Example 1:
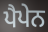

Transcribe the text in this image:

ਪੈਪੇਨ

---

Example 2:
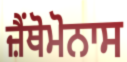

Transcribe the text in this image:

ਜ਼ੈਂਥੋਮੋਨਾਸ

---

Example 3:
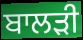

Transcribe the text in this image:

ਬਾਲੜੀ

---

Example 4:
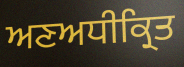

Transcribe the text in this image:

ਅਣਅਧੀਕ੍ਰਿਤ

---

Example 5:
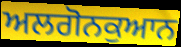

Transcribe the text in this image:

ਅਲਗੋਨਕੁਆਨ